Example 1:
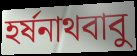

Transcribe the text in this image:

হর্ষনাথবাবু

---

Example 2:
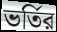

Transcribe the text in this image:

ভর্তির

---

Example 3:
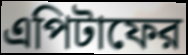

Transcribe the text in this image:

এপিটাফের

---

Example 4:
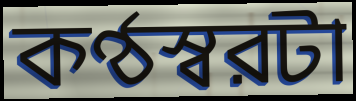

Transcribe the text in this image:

কণ্ঠস্বরটা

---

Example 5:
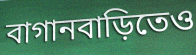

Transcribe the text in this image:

বাগানবাড়িতেও